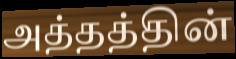
அத்தத்தின்